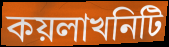
কয়লাখনিটি